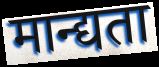
मान्द्यता